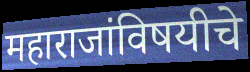
महाराजांविषयीचे